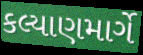
કલ્યાણમાર્ગે